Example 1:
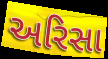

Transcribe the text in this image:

અરિસા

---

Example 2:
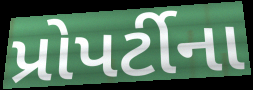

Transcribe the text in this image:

પ્રોપર્ટીના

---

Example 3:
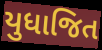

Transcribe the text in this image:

યુધાજિત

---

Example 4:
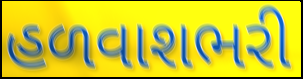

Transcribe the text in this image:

હળવાશભરી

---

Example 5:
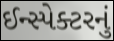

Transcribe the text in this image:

ઈન્સ્પેક્ટરનું